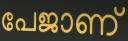
പേജാണ്